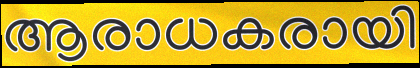
ആരാധകരായി